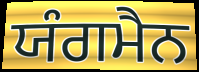
ਯੰਗਮੈਨ